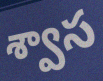
శ్వాస